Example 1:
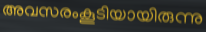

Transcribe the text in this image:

അവസരംകൂടിയായിരുന്നു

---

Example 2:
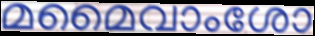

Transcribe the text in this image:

മമൈവാംശോ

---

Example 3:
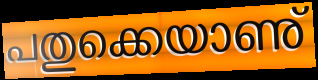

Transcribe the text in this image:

പതുക്കെയാണു്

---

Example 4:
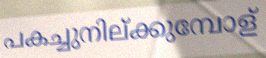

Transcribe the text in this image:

പകച്ചുനില്ക്കുമ്പോള്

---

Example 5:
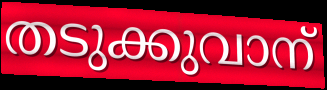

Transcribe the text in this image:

തടുക്കുവാന്